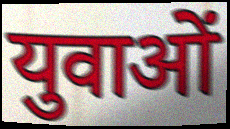
युवाओं